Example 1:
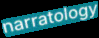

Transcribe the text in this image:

narratology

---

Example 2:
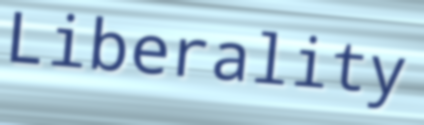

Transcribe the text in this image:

Liberality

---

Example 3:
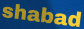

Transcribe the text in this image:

shabad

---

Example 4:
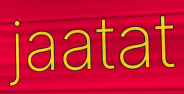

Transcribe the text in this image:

jaatat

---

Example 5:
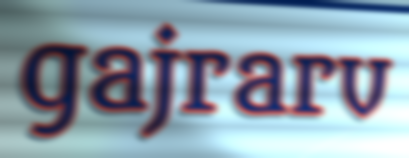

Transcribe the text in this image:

gajraru